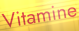
Vitamine